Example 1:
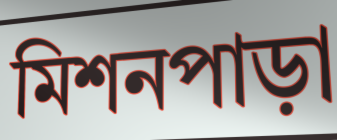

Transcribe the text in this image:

মিশনপাড়া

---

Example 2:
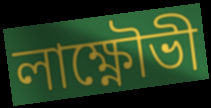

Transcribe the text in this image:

লাক্ষ্ণৌভী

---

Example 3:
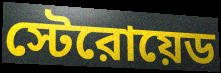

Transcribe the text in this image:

স্টেরোয়েড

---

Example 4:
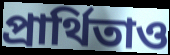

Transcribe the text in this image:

প্রার্থিতাও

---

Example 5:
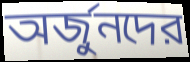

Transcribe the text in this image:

অর্জুনদের